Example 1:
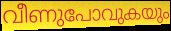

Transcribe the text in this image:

വീണുപോവുകയും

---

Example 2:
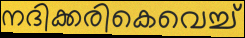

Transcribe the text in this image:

നദിക്കരികെവെച്ച്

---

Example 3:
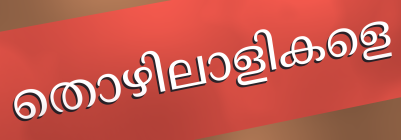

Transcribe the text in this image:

തൊഴിലാളികളെ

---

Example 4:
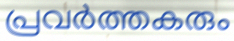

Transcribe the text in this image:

പ്രവർത്തകരും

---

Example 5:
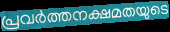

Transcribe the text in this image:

പ്രവർത്തനക്ഷമതയുടെ